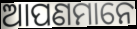
ଆପଣମାନେ